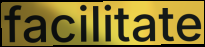
facilitate